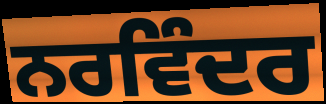
ਨਰਵਿੰਦਰ